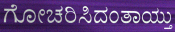
ಗೋಚರಿಸಿದಂತಾಯ್ತು